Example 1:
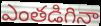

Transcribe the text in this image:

ఎంతడిగినా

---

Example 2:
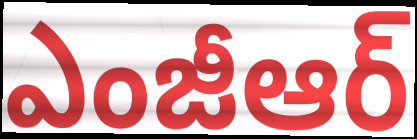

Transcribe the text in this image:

ఎంజీఆర్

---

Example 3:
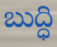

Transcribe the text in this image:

బుద్ధి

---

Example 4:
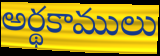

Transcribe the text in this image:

అర్థకాములు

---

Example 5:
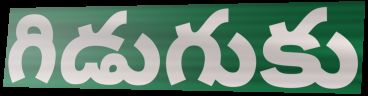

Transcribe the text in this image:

గిడుగుకు